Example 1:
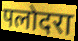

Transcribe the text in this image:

पलोदरा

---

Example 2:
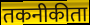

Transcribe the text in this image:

तकनीकीता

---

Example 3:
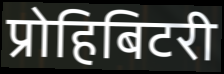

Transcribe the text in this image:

प्रोहिबिटरी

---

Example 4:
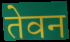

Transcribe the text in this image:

तेवन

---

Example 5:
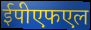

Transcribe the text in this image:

ईपीएफएल